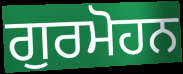
ਗੁਰਮੋਹਨ